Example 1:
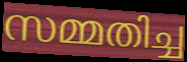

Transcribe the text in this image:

സമ്മതിച്ച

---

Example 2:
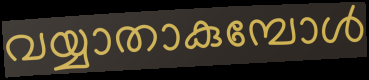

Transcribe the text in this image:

വയ്യാതാകുമ്പോൾ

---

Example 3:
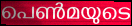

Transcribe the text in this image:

പെൺമയുടെ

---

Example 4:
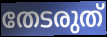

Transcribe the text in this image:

തേടരുത്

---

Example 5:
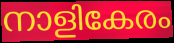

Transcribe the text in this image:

നാളികേരം